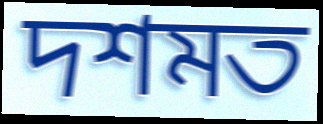
দশমত